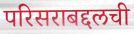
परिसराबद्दलची